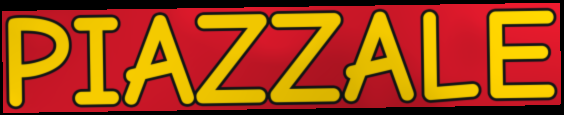
PIAZZALE